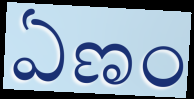
ఏణం